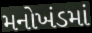
મનોખંડમાં